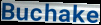
Buchake